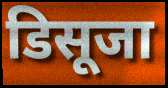
डिसूजा